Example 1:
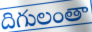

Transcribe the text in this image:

దిగులంతా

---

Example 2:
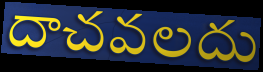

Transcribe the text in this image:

దాచవలదు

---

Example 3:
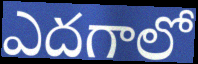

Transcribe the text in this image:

ఎదగాలో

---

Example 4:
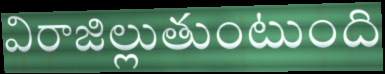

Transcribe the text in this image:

విరాజిల్లుతుంటుంది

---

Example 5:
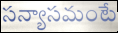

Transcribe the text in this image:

సన్యాసమంటే